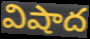
విషాద